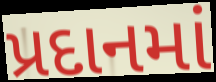
પ્રદાનમાં